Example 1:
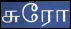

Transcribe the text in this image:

சுரோ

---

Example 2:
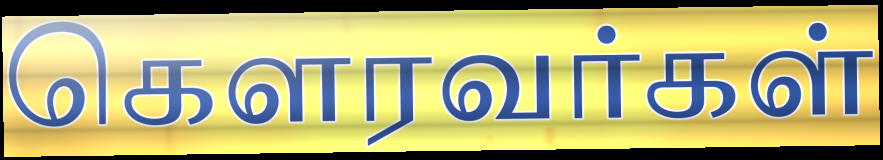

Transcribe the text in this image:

கௌரவர்கள்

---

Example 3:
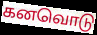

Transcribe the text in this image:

கனவொடு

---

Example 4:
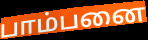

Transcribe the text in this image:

பாம்பனை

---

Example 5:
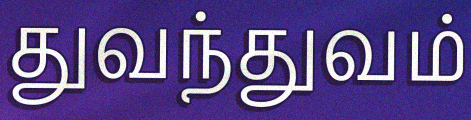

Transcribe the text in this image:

துவந்துவம்